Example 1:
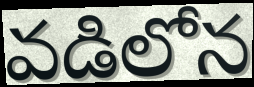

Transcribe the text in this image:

వడిలోన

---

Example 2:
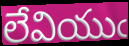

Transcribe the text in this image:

లేవియుఁ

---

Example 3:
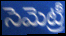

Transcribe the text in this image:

సెమెట్రీ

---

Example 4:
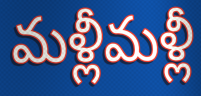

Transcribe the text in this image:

మళ్లీమళ్లీ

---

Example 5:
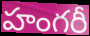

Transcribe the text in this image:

హంగరీ